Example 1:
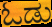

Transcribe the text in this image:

ಓಡು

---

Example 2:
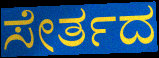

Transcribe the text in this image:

ಸೇರ್ತದ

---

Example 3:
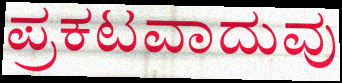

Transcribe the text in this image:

ಪ್ರಕಟವಾದುವು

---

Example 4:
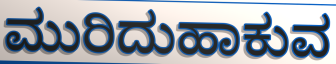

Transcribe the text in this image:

ಮುರಿದುಹಾಕುವ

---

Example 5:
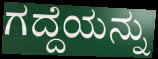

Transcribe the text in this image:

ಗದ್ದೆಯನ್ನು